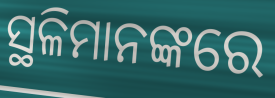
ସ୍ଥଳିମାନଙ୍କରେ